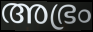
അഭ്രം